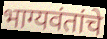
भाग्यवंतांचे